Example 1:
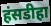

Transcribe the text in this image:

हंसडीहा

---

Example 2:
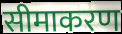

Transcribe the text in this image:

सीमाकरण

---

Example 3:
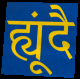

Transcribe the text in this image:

ह्यूंदै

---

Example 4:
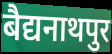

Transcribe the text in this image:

बैद्यनाथपुर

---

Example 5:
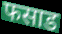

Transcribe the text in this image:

फसाड